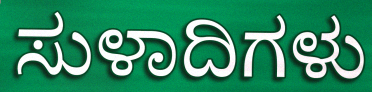
ಸುಳಾದಿಗಳು